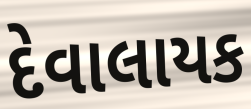
દેવાલાયક